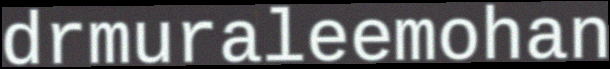
drmuraleemohan